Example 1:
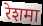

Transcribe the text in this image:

रेशमा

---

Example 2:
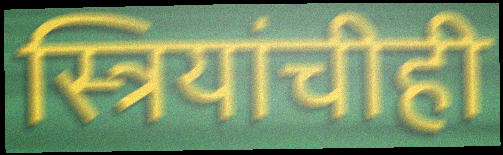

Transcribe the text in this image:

स्त्रियांचीही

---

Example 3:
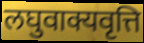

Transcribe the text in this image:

लघुवाक्यवृत्ति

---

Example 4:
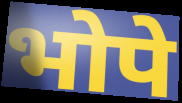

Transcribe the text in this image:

भोपे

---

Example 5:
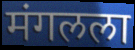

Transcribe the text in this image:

मंगलला